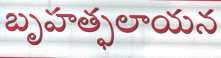
బృహత్ఫలాయన